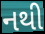
નથી